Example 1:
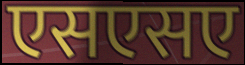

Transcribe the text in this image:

एसएसए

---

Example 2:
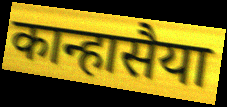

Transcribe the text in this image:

कान्हासैया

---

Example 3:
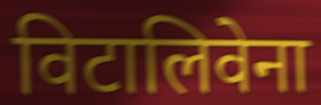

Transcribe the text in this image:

विटालिवेना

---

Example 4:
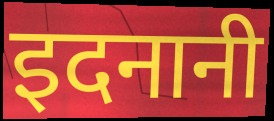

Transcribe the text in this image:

इदनानी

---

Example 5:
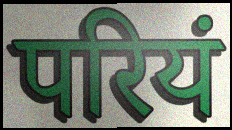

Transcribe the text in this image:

परियं